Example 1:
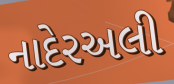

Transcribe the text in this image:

નાદેરઅલી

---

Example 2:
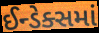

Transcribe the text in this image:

ઈન્ડેક્સમાં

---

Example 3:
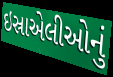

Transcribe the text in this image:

ઇસ્રાએલીઓનું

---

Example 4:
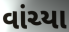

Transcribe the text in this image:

વાંચ્યા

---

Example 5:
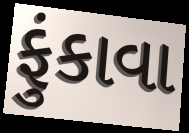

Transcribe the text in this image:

ફુંકાવા